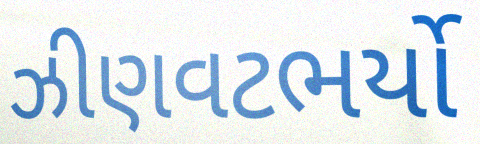
ઝીણવટભર્યો